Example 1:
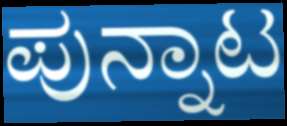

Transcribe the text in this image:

ಪುನ್ನಾಟ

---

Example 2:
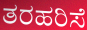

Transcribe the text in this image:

ತರಹರಿಸೆ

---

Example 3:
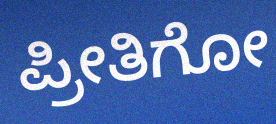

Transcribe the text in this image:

ಪ್ರೀತಿಗೋ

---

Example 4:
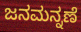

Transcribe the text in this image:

ಜನಮನ್ನಣೆ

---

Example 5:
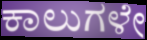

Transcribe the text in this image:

ಕಾಲುಗಳೇ